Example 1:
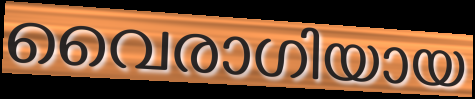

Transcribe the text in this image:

വൈരാഗിയായ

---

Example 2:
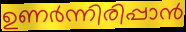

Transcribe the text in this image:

ഉണർന്നിരിപ്പാൻ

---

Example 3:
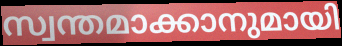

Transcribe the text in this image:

സ്വന്തമാക്കാനുമായി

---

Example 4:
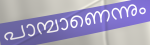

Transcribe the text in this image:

പാമ്പാണെന്നും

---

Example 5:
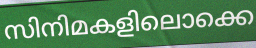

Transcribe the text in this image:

സിനിമകളിലൊക്കെ